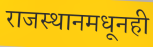
राजस्थानमधूनही